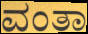
ವಂತಾ